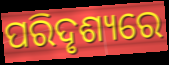
ପରିଦୃଶ୍ୟରେ